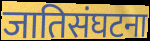
जातिसंघटना